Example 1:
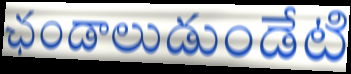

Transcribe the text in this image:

ఛండాలుడుండేటి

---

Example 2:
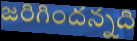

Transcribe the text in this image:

జరిగిందన్నది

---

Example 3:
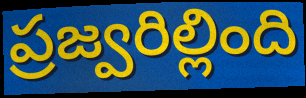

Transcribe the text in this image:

ప్రజ్వరిల్లింది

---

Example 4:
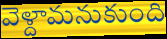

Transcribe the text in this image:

వెళ్దామనుకుంది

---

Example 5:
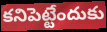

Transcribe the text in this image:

కనిపెట్టేందుకు